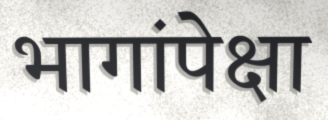
भागांपेक्षा